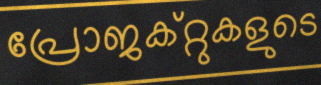
പ്രോജക്റ്റുകളുടെ